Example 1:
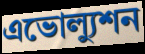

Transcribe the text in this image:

এভোল্যুশন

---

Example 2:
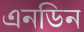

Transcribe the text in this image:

এনডিন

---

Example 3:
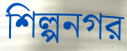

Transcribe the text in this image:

শিল্পনগর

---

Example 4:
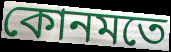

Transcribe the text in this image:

কোনমতে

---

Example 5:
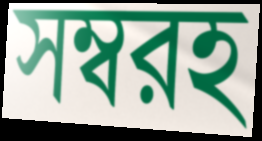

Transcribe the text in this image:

সম্বরহ